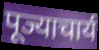
पूज्याचार्य